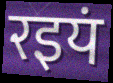
रइयं